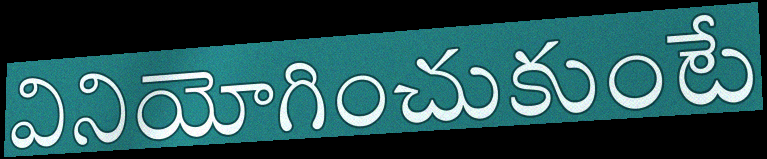
వినియోగించుకుంటే